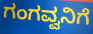
ಗಂಗವ್ವನಿಗೆ